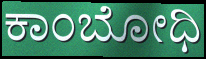
ಕಾಂಬೋಧಿ